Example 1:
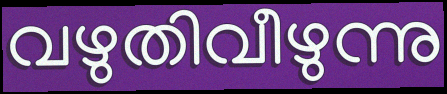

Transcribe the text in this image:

വഴുതിവീഴുന്നു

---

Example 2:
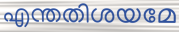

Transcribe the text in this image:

എന്തതിശയമേ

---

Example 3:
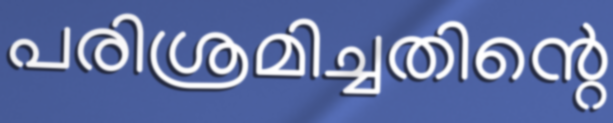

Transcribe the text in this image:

പരിശ്രമിച്ചതിന്റെ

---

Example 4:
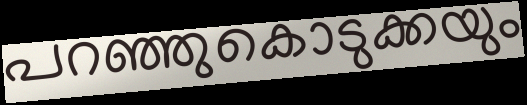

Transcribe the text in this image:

പറഞ്ഞുകൊടുക്കയും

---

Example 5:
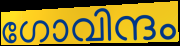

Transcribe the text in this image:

ഗോവിന്ദം